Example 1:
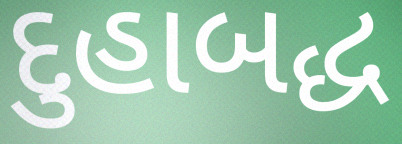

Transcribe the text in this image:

દુહાબદ્ધ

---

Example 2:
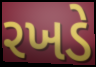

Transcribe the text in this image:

રખડે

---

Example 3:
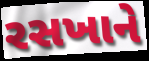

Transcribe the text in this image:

રસખાને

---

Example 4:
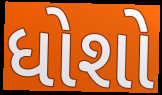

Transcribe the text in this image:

ધોશો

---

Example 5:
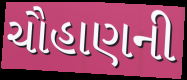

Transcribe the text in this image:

ચૌહાણની